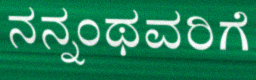
ನನ್ನಂಥವರಿಗೆ